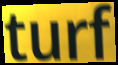
turf